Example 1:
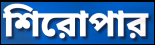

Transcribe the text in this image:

শিরোপার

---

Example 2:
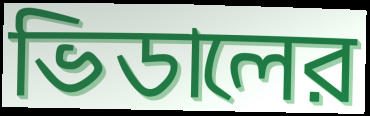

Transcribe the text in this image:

ভিডালের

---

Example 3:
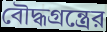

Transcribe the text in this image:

বৌদ্ধগ্রন্ত্রের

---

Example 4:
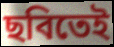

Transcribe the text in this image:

ছবিতেই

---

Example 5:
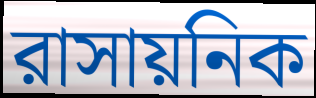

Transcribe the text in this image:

রাসায়নিক